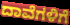
ದಾವೆಗಳಿಗೆ